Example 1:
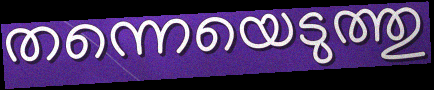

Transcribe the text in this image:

തന്നെയെടുത്തു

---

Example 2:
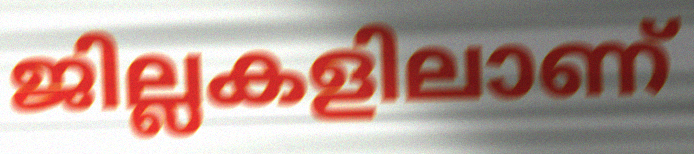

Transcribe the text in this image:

ജില്ലകളിലാണ്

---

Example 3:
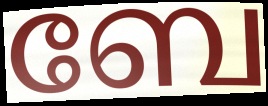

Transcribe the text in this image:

ബേ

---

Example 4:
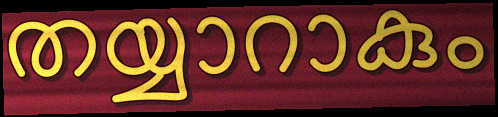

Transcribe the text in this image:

തയ്യാറാകും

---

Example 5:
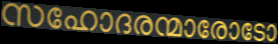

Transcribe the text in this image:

സഹോദരന്മാരോടോ